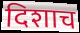
दिशाच